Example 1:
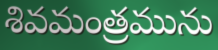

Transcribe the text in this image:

శివమంత్రమును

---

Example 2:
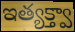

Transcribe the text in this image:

ఇత్యక్త్వా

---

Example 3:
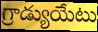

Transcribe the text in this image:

గ్రాడ్యుయేటు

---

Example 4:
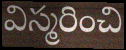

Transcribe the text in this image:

విస్మరించి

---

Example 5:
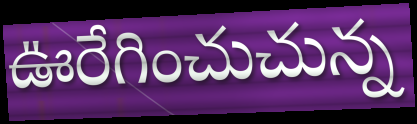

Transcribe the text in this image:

ఊరేగించుచున్న